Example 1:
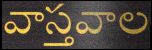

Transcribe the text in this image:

వాస్తవాల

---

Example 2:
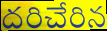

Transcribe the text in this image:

దరిచేరిన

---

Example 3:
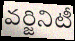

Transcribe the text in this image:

వర్జినిటీ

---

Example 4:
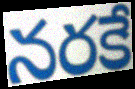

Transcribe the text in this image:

నరకే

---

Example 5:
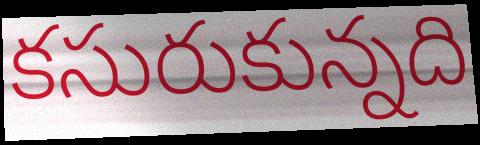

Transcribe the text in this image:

కసురుకున్నది